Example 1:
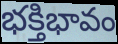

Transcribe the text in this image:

భక్తిభావం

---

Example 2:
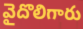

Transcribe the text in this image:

వైదొలిగారు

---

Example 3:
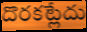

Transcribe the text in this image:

దొరకట్లేదు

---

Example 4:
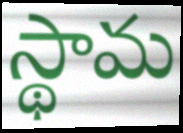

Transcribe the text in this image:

స్థామ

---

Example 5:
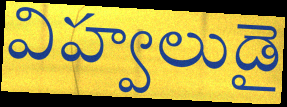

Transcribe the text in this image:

విహ్వలుడై